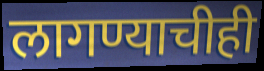
लागण्याचीही